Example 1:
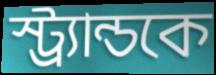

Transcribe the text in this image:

স্ট্র্যান্ডকে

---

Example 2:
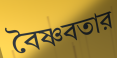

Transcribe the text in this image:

বৈষ্ণবতার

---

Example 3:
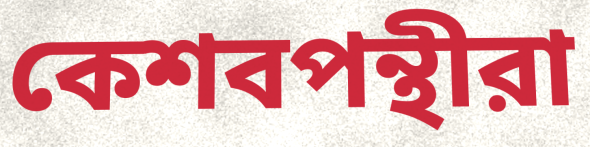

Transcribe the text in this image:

কেশবপন্থীরা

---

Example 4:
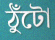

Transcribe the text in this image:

ঠুঁটো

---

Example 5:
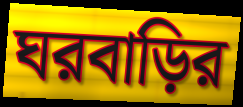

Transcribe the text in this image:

ঘরবাড়ির